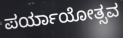
ಪರ್ಯಾಯೋತ್ಸವ